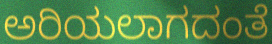
ಅರಿಯಲಾಗದಂತೆ